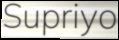
Supriyo